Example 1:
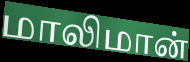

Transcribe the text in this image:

மாலிமான்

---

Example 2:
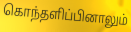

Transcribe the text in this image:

கொந்தளிப்பினாலும்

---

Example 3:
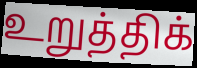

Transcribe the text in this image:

உறுத்திக்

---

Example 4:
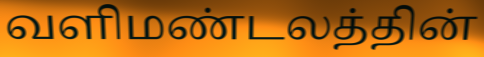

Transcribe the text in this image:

வளிமண்டலத்தின்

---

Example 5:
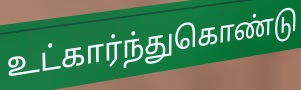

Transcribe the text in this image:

உட்கார்ந்துகொண்டு